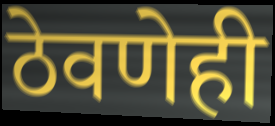
ठेवणेही